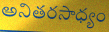
అనితరసాధ్యం